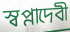
স্বপ্নাদেবী